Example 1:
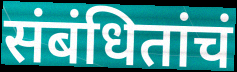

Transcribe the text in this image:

संबंधितांचं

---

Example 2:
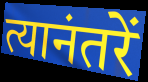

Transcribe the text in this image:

त्यानंतरें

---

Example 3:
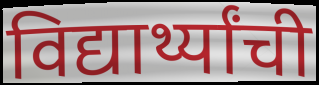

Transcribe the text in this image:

विद्यार्थ्‍यांची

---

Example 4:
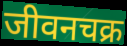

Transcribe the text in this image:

जीवनचक्र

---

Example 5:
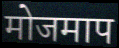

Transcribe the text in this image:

मोजमाप